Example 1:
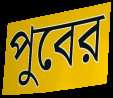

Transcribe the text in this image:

পুবের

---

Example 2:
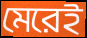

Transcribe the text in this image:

মেরেই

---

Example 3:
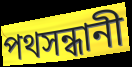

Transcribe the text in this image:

পথসন্ধানী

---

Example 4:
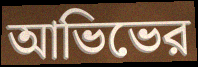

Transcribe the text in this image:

আভিভের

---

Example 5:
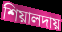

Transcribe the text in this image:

শিয়ালদায়